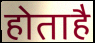
होताहै